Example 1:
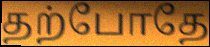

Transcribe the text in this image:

தற்போதே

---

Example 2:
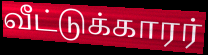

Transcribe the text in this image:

வீட்டுக்காரர்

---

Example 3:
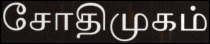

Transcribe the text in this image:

சோதிமுகம்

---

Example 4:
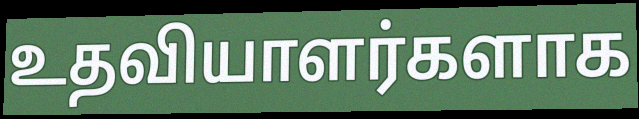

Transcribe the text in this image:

உதவியாளர்களாக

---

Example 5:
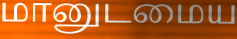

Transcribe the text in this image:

மானுடமைய